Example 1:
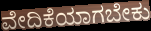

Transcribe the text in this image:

ವೇದಿಕೆಯಾಗಬೇಕು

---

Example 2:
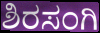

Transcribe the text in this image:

ಶಿರಸಂಗಿ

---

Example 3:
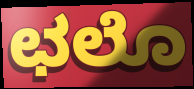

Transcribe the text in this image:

ಛಲೊ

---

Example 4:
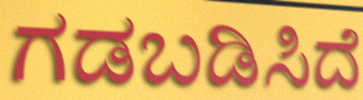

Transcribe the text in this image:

ಗಡಬಡಿಸಿದೆ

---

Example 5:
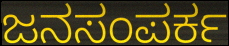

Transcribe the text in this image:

ಜನಸಂಪರ್ಕ